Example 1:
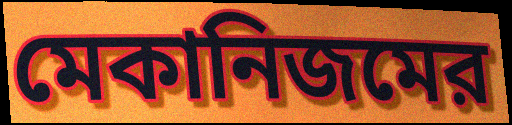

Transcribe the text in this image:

মেকানিজমের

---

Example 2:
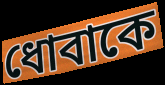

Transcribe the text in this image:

ধোবাকে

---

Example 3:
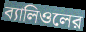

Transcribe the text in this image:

ব্যালিওলের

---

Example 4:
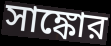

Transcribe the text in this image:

সাঙ্কোর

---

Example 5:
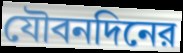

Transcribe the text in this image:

যৌবনদিনের